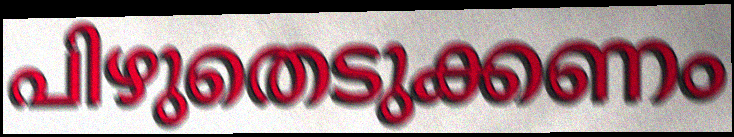
പിഴുതെടുക്കണം